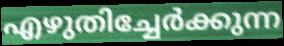
എഴുതിച്ചേർക്കുന്ന